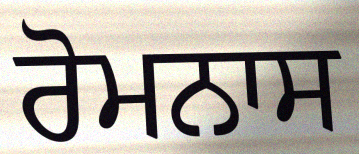
ਰੋਮਨਾਸ